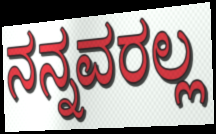
ನನ್ನವರಲ್ಲ